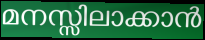
മനസ്സിലാക്കാൻ